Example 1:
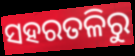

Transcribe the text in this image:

ସହରତଳିରୁ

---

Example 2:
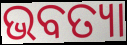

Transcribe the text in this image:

ଭବତ୍ୟା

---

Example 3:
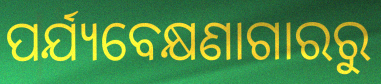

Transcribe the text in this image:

ପର୍ଯ୍ୟବେକ୍ଷଣାଗାରରୁ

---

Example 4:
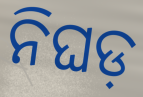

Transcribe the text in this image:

ନିଘଡ଼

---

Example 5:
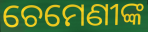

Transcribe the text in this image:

ଚେମେଣୀଙ୍କ